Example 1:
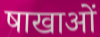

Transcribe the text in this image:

षाखाओं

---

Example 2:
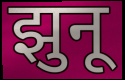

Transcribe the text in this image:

झुनू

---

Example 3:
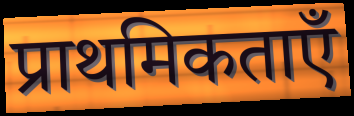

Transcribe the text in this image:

प्राथमिकताएँ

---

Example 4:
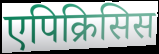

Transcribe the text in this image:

एपिक्रिसिस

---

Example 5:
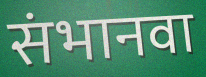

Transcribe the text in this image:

संभानवा